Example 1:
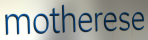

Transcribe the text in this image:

motherese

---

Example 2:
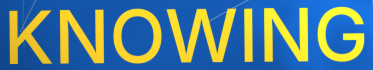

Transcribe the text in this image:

KNOWING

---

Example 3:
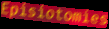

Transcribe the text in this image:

Episiotomies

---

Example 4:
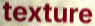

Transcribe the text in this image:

texture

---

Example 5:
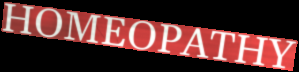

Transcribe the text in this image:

HOMEOPATHY